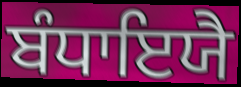
ਬੰਧਾਇਯੈ